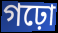
গঢ়ো